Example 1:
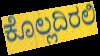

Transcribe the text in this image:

ಕೊಲ್ಲದಿರಲಿ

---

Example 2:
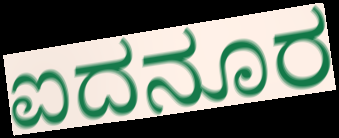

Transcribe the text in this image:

ಐದನೂರ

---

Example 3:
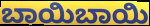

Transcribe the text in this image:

ಬಾಯಿಬಾಯಿ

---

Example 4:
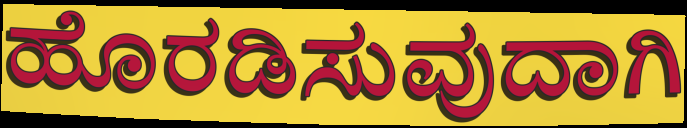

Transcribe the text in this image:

ಹೊರಡಿಸುವುದಾಗಿ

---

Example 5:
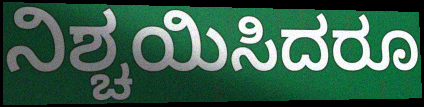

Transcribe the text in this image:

ನಿಶ್ಚಯಿಸಿದರೂ